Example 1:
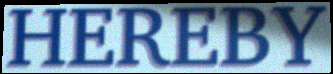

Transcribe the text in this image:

HEREBY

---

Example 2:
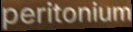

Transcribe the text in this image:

peritonium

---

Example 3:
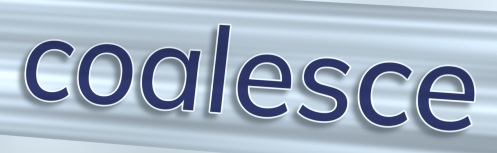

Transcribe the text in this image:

coalesce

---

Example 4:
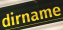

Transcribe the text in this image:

dirname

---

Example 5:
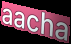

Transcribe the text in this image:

aacha